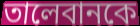
তালেবানকে